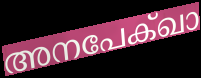
അനപേക്ഖാ